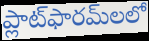
ప్లాట్‌ఫారమ్‌లలో